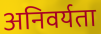
अनिवर्यता